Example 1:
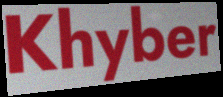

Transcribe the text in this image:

Khyber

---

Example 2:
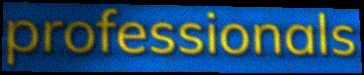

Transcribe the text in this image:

professionals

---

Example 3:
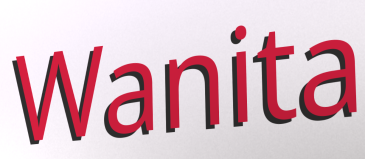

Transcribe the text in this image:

Wanita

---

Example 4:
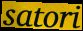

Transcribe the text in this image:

satori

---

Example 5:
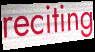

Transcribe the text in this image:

reciting